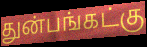
துன்பங்கட்கு